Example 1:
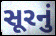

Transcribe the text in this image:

સૂરનું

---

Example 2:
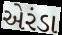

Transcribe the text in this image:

એરંડા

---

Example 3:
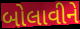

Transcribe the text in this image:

બોલાવીને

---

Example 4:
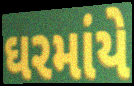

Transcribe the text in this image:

ઘરમાંયે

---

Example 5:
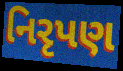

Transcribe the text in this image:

નિરૃપણ